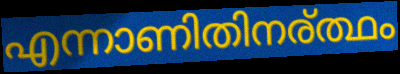
എന്നാണിതിനര്ത്ഥം